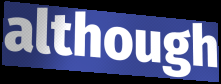
although